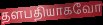
தளபதியாகவோ